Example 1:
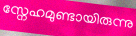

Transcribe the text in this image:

സ്നേഹമുണ്ടായിരുന്നു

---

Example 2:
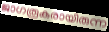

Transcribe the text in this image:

ജാഗരൂകരായിരുന്ന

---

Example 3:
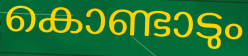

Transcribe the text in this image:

കൊണ്ടാടും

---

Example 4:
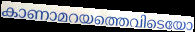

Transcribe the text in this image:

കാണാമറയത്തെവിടെയോ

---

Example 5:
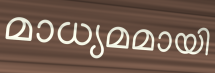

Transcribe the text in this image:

മാധ്യമമായി